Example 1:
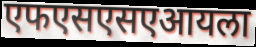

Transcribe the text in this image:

एफएसएसएआयला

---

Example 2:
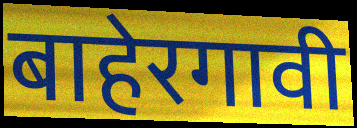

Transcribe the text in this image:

बाहेरगावी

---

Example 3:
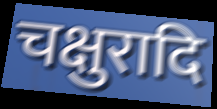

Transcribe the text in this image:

चक्षुरादि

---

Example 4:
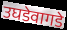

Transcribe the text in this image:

उघडेवागडे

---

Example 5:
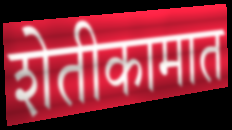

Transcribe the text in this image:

शेतीकामात